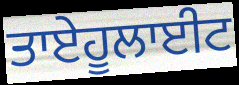
ਤਾਏਹੂਲਾਈਟ